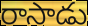
రాసాడు